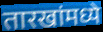
तारखांमध्ये